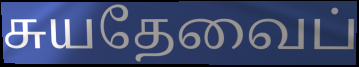
சுயதேவைப்